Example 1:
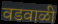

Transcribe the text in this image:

वडवाळी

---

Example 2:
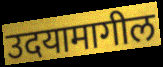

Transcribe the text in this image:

उदयामागील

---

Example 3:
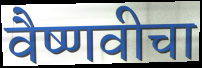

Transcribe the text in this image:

वैष्णवीचा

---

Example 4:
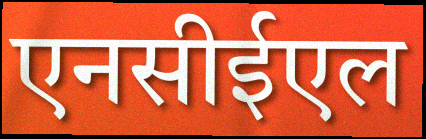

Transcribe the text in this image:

एनसीईएल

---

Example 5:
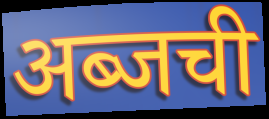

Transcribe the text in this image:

अब्जची